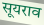
सूयराव